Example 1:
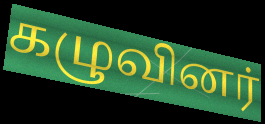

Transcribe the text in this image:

கழுவினர்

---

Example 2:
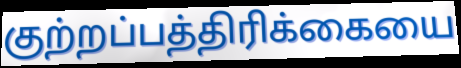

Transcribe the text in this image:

குற்றப்பத்திரிக்கையை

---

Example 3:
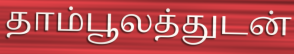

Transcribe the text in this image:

தாம்பூலத்துடன்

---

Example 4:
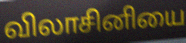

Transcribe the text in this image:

விலாசினியை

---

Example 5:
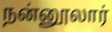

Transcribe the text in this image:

நன்னூலார்